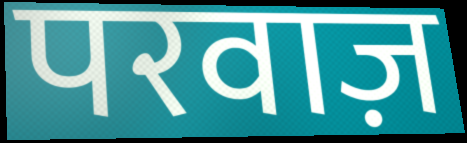
परवाज़